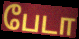
பேடா